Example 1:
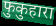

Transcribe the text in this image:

फुकुहारा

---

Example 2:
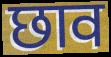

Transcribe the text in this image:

छाव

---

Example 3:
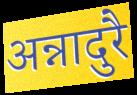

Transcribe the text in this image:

अन्नादुरै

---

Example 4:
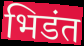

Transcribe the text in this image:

भिडंत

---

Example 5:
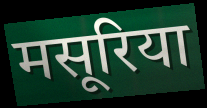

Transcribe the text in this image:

मसूरिया